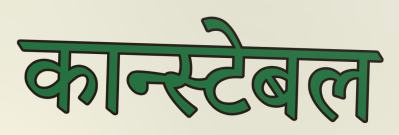
कान्स्टेबल